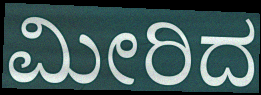
ಮೀರಿದ